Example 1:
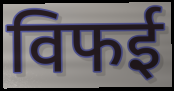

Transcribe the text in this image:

विफई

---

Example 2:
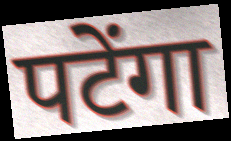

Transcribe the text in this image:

पटेंगा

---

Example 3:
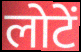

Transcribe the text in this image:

लोटें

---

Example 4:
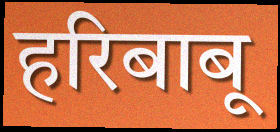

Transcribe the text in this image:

हरिबाबू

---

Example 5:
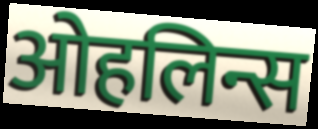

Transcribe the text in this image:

ओहलिन्स